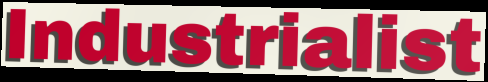
Industrialist